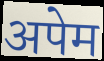
अपेम